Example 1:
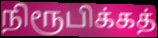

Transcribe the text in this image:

நிரூபிக்கத்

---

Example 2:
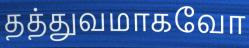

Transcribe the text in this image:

தத்துவமாகவோ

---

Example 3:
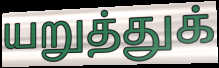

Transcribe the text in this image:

யறுத்துக்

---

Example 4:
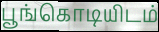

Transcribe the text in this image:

பூங்கொடியிடம்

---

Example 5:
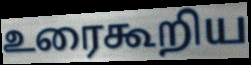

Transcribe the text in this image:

உரைகூறிய